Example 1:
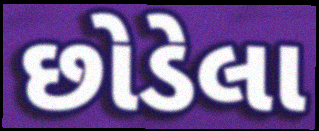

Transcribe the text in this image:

છોડેલા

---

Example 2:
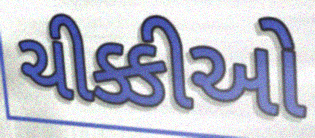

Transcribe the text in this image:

ચીક્કીઓ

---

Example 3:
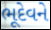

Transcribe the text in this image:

ભૂદેવને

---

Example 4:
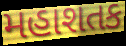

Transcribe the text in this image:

મહાશતક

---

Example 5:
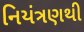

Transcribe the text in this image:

નિયંત્રણથી